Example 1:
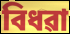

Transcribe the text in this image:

বিধৱা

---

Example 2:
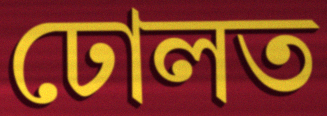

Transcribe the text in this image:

ঢোলত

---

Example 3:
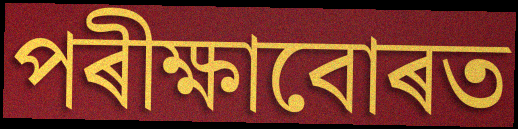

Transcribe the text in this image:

পৰীক্ষাবোৰত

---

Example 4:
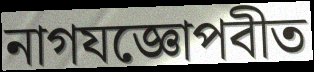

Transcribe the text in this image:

নাগযজ্ঞোপবীত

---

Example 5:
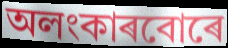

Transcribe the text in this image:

অলংকাৰবোৰে